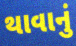
થાવાનું